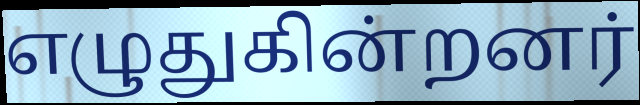
எழுதுகின்றனர்